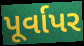
પૂર્વાપર